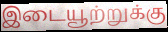
இடையூற்றுக்கு